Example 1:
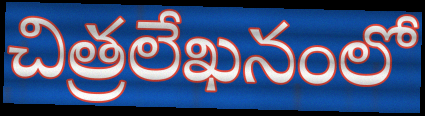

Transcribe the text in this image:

చిత్రలేఖనంలో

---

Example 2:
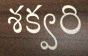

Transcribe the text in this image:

శక్వరి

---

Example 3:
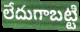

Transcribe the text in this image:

లేదుగాబట్టి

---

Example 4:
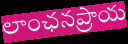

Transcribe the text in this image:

లాంఛనప్రాయ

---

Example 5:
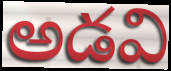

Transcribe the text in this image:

అడవి